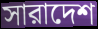
সারাদেশ